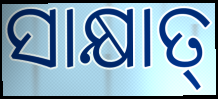
ସାକ୍ଷାତ୍